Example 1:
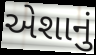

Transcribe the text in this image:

એશાનું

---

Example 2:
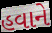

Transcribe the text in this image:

હવાને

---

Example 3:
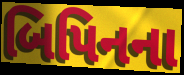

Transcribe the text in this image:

બિપિનના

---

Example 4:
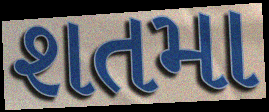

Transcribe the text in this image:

શતમા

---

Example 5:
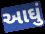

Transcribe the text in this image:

આઘું